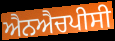
ਐਨਐਚਪੀਸੀ